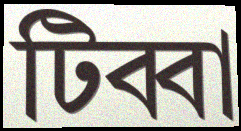
টিব্বা